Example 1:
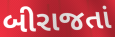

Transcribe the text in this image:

બીરાજતાં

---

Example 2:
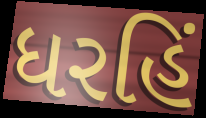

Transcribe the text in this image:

ધરહિં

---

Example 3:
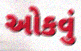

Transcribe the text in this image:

ઓકવું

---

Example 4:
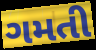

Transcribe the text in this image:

ગમતી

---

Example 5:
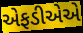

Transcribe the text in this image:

એફડીએએ